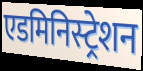
एडमिनिस्‍ट्रेशन